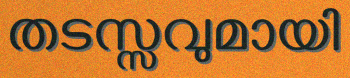
തടസ്സവുമായി